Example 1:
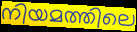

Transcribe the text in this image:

നിയമത്തിലെ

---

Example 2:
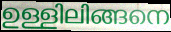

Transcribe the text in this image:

ഉള്ളിലിങ്ങനെ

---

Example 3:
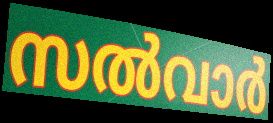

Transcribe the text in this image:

സൽവാർ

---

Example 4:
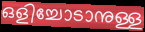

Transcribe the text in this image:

ഒളിച്ചോടാനുള്ള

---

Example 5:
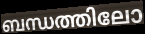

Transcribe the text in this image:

ബന്ധത്തിലോ